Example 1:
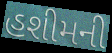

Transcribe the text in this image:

હશીમની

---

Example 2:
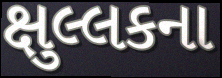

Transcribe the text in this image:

ક્ષુલ્લકના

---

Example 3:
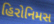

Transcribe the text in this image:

હિરોનિમસ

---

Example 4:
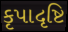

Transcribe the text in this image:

કૃપાદૃષ્ટિ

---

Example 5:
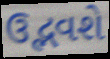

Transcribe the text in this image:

ઉદ્ભવશે